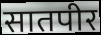
सातपीर